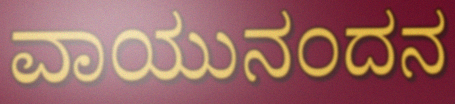
ವಾಯುನಂದನ